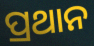
ପ୍ରଥାନ